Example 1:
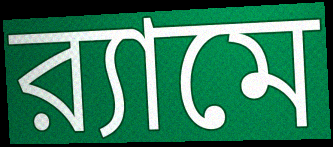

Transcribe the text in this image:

র‍্যামে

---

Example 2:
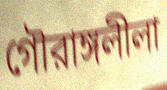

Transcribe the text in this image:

গৌরাঙ্গলীলা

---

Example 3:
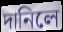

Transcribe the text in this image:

দানিলে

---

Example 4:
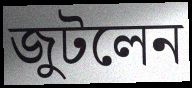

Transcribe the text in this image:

জুটলেন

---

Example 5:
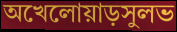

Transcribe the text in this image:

অখেলোয়াড়সুলভ